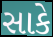
સાકે